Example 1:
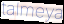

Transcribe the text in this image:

talmeya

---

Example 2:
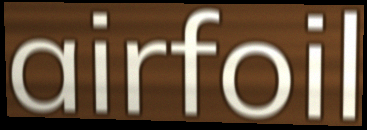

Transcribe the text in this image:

airfoil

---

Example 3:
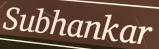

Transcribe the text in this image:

Subhankar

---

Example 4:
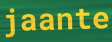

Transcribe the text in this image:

jaante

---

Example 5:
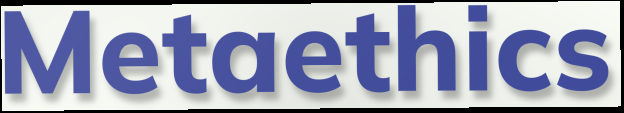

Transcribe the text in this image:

Metaethics